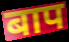
बाप